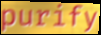
purify